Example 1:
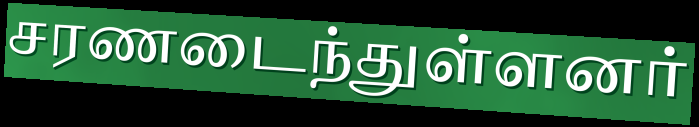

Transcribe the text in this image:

சரணடைந்துள்ளனர்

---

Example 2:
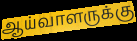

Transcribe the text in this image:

ஆய்வாளருக்கு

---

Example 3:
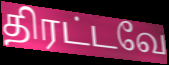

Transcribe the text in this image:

திரட்டவே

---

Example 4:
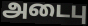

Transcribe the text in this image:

அடைபு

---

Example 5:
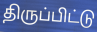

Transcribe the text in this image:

திருப்பிட்டு